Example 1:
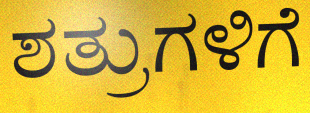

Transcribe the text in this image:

ಶತ್ರುಗಳಿಗೆ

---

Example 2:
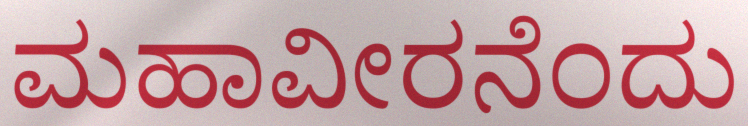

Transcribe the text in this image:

ಮಹಾವೀರನೆಂದು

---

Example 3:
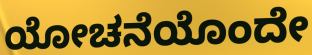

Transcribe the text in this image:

ಯೋಚನೆಯೊಂದೇ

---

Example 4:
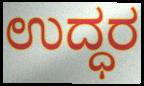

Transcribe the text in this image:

ಉದ್ಧರ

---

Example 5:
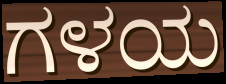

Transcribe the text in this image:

ಗಳಯ